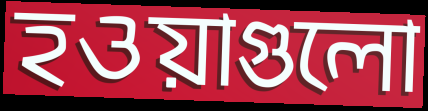
হওয়াগুলো